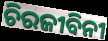
ଚିରଜୀବିନୀ